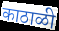
काठाळी